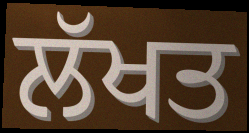
ਲੱਖਤ